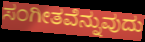
ಸಂಗೀತವೆನ್ನುವುದು